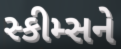
સ્કીમ્સને